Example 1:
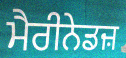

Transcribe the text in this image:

ਮੈਰੀਨੇਡਜ਼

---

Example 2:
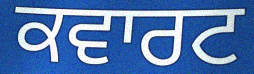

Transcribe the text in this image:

ਕਵਾਰਟ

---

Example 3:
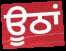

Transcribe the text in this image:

ਊਠਾਂ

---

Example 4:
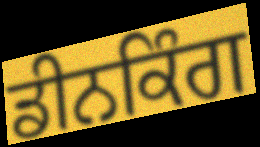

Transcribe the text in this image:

ਡੀਨਕਿੰਗ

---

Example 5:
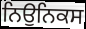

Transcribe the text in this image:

ਨਿਉਨਿਕਸ